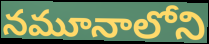
నమూనాలోని